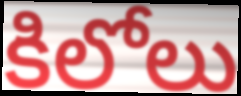
కిలోలు